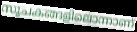
സൂചകങ്ങളിലൊന്നാണ്